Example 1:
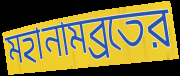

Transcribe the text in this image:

মহানামব্রতের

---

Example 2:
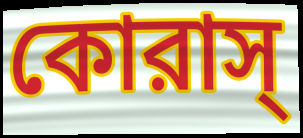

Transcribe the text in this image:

কোরাস্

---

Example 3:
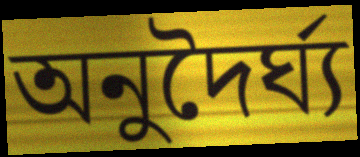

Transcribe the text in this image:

অনুদৈর্ঘ্য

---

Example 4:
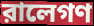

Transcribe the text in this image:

রালেগণ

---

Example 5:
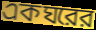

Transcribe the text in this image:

একঘরের